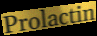
Prolactin